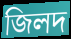
জিলদ